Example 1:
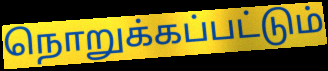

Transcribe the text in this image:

நொறுக்கப்பட்டும்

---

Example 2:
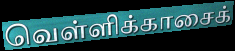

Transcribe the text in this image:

வெள்ளிக்காசைக்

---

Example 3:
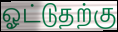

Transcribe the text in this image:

ஓட்டுதற்கு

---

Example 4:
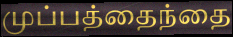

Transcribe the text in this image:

முப்பத்தைந்தை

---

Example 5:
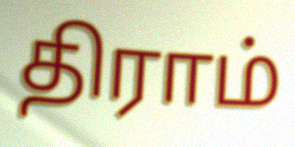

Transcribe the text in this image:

திராம்